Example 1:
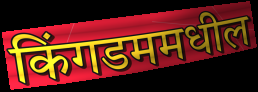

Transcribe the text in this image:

किंगडममधील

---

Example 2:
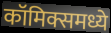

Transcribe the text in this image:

कॉमिक्समध्ये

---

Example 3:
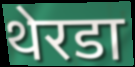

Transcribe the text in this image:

थेरडा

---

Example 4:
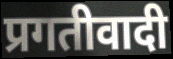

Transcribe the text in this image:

प्रगतीवादी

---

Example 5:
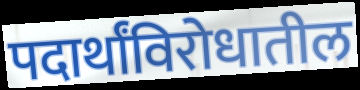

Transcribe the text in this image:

पदार्थांविरोधातील